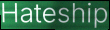
Hateship